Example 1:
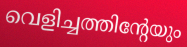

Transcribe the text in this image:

വെളിച്ചത്തിന്റേയും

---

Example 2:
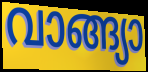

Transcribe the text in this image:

വാങ്ങ്യാ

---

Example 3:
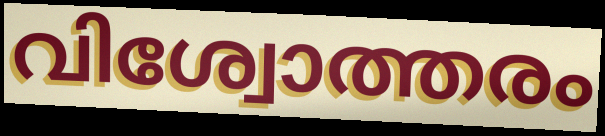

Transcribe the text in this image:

വിശ്വോത്തരം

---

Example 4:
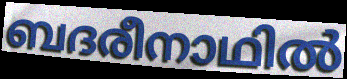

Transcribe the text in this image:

ബദരീനാഥിൽ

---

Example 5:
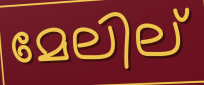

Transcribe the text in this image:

മേലില്